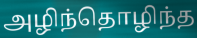
அழிந்தொழிந்த